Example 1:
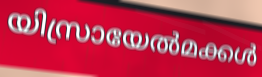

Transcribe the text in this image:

യിസ്രായേൽമക്കൾ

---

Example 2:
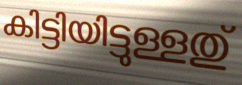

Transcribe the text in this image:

കിട്ടിയിട്ടുള്ളതു്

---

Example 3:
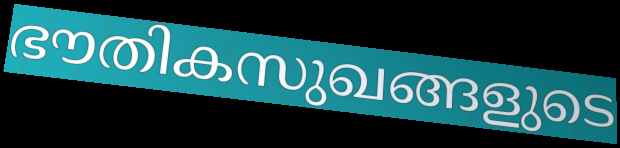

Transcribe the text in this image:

ഭൗതികസുഖങ്ങളുടെ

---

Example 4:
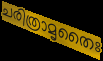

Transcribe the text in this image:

ചരിത്രാമൃതൈഃ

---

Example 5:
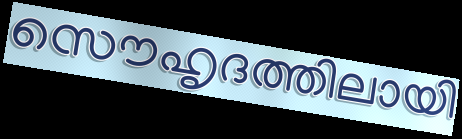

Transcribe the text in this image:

സൌഹൃദത്തിലായി